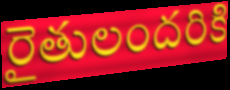
రైతులందరికి